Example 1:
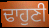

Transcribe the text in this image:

ਢਾਹੁਣੀ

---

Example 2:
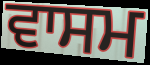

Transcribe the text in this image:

ਵਾਸਮ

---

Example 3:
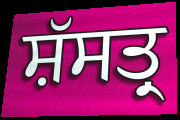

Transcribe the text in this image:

ਸ਼ੱਸਤ੍ਰ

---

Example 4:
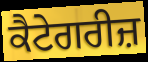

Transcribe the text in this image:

ਕੈਟੇਗਰੀਜ਼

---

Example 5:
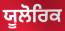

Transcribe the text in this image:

ਯੂਲੋਰਿਕ